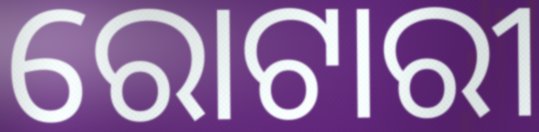
ରୋଟାରୀ